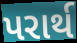
પરાર્થ